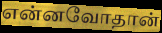
என்னவோதான்